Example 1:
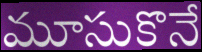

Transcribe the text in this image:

మూసుకొనే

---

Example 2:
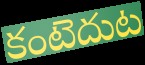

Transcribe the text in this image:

కంటెదుట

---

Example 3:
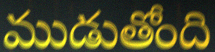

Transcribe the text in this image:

ముడుతోంది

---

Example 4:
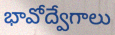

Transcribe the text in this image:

భావోద్వేగాలు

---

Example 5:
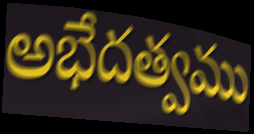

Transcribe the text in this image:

అభేదత్వము